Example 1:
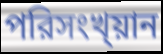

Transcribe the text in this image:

পরিসংখ্য়ান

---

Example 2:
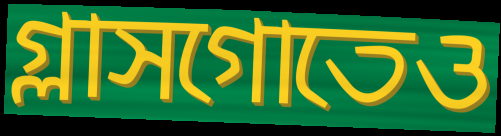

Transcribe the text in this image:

গ্লাসগোতেও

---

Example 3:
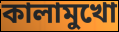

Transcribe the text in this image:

কালামুখো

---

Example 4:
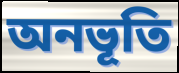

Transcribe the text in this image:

অনভূতি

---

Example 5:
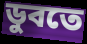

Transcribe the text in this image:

ডুবতে